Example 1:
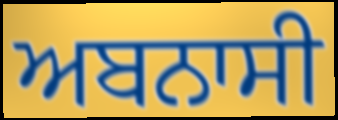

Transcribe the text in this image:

ਅਬਨਾਸੀ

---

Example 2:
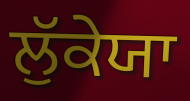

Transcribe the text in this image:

ਲੁੱਕੇਯਾ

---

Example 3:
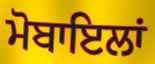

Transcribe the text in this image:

ਮੋਬਾਇਲਾਂ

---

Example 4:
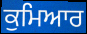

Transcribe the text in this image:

ਕੁਮਿਆਰ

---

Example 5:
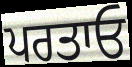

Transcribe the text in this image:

ਪਰਤਾਓ